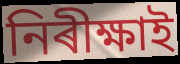
নিৰীক্ষাই